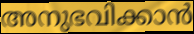
അനുഭവിക്കാൻ